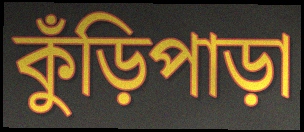
কুঁড়িপাড়া